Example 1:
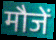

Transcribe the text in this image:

मौजें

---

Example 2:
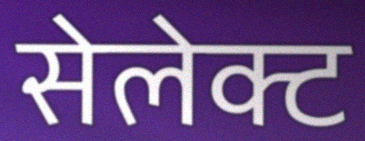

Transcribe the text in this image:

सेलेक्ट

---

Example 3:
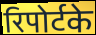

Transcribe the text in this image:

रिपोर्टके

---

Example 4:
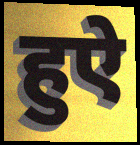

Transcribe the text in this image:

हुऐ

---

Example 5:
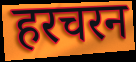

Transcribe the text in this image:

हरचरन